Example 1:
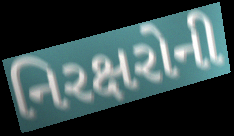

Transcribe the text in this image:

નિરક્ષરોની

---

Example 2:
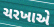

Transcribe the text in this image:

ચરખાએ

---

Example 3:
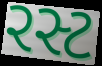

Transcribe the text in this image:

રસ્ટ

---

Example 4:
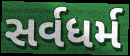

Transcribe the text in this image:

સર્વધર્મ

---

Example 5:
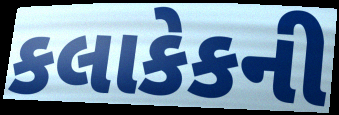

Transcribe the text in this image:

કલાકેકની